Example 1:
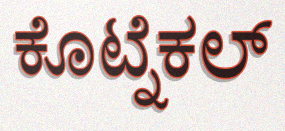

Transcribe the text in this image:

ಕೊಟ್ನೆಕಲ್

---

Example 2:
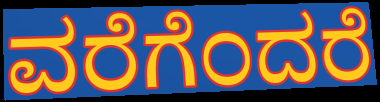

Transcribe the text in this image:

ವರೆಗೆಂದರೆ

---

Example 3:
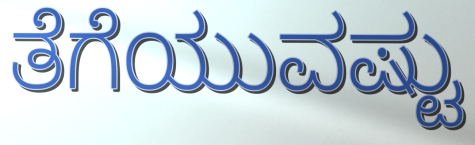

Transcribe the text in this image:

ತೆಗೆಯುವಷ್ಟು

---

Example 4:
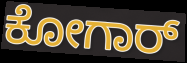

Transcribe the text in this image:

ಕೋಗಾರ್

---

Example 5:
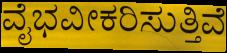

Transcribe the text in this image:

ವೈಭವೀಕರಿಸುತ್ತಿವೆ